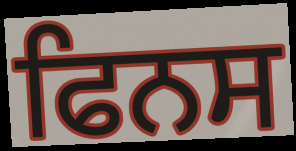
ਫਿਨਸ